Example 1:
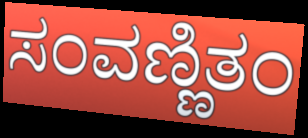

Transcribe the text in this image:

ಸಂವಣ್ಣಿತಂ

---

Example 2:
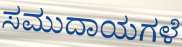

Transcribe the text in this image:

ಸಮುದಾಯಗಳೆ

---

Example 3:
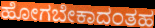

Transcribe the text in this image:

ಹೋಗಬೇಕಾದಂತಹ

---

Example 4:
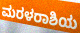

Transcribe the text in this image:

ಮರಳರಾಶಿಯ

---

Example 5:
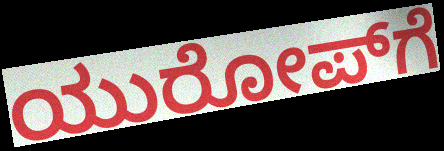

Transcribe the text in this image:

ಯುರೋಪ್‌ಗೆ